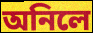
অনিলে